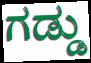
ಗಡ್ಡು